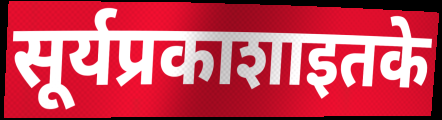
सूर्यप्रकाशाइतके